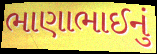
ભાણાભાઈનું